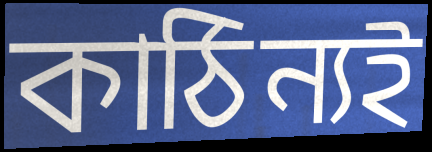
কাঠিন্যই